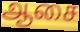
ஆசை